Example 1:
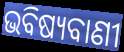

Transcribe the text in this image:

ଭବିଷ୍ଯବାଣୀ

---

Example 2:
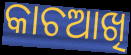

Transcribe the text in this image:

କାଚଆଖି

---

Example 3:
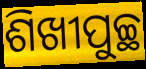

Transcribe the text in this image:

ଶିଖୀପୁଚ୍ଛ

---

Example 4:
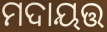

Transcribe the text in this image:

ମଦାୟତ୍ତ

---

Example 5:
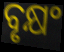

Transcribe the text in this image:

ବୃକ୍ଷଂ